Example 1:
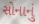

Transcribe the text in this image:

સોનાનું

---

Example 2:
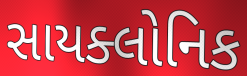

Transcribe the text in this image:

સાયક્લોનિક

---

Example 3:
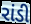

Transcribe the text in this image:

રાંડી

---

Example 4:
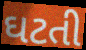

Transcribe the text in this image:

ઘટતી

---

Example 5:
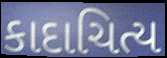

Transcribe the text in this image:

કાદાચિત્ય